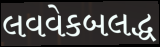
લવવેકબલદ્ધ